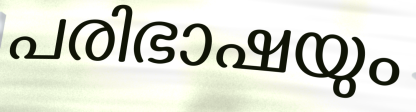
പരിഭാഷയും